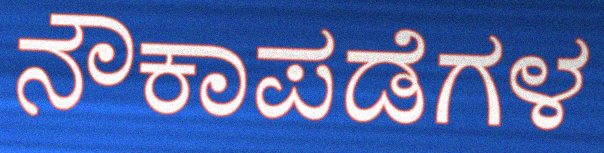
ನೌಕಾಪಡೆಗಳ